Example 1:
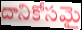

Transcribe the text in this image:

దానికోసమై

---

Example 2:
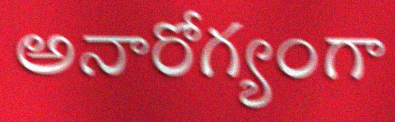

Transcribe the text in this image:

అనారోగ్యంగా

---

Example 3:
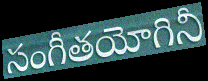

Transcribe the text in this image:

సంగీతయోగినీ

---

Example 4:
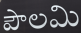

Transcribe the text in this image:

పౌలమి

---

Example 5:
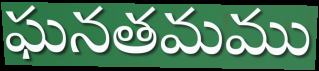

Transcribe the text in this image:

ఘనతమము